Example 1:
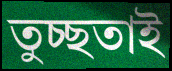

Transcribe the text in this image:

তুচ্ছতাই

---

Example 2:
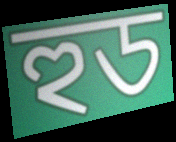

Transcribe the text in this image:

হুড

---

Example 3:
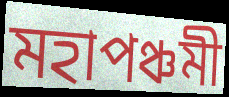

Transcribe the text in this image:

মহাপঞ্চমী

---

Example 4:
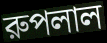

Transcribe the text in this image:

রুপলাল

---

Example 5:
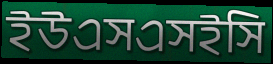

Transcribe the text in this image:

ইউএসএসইসি